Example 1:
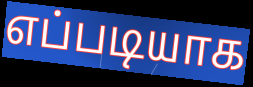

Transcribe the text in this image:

எப்படியாக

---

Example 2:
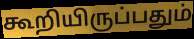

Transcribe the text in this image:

கூறியிருப்பதும்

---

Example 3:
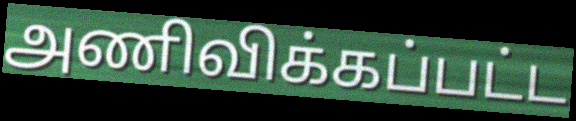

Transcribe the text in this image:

அணிவிக்கப்பட்ட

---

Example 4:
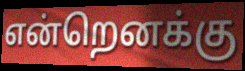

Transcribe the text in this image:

என்றெனக்கு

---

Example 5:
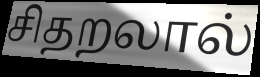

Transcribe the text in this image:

சிதறலால்